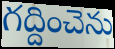
గద్దించెను